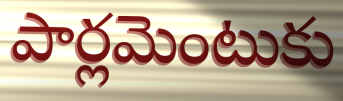
పార్లమెంటుకు